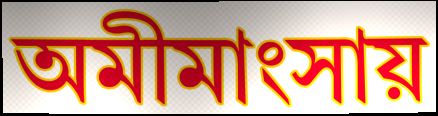
অমীমাংসায়